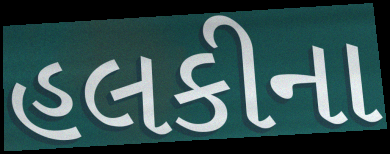
હલકીના